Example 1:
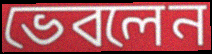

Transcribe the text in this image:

ভেবলেন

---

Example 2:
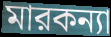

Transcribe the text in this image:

মারকন্যা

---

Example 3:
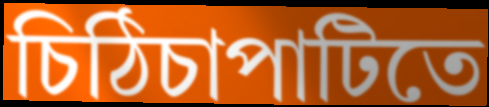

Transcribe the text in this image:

চিঠিচাপাটিতে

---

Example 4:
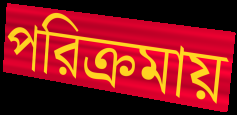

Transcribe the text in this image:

পরিক্রমায়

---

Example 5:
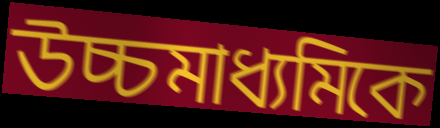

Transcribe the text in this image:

উচ্চমাধ্যমিকে